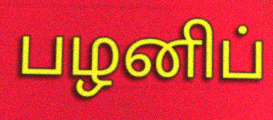
பழனிப்